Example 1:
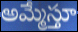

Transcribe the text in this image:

అమ్మేస్తూ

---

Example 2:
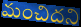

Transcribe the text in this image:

మంచిదని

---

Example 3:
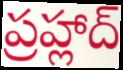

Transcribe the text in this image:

ప్రహ్లాద్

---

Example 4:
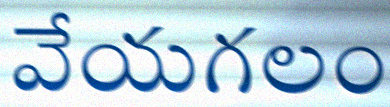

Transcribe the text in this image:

వేయగలం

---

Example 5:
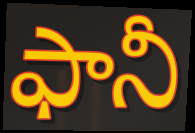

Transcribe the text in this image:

ఫానీ